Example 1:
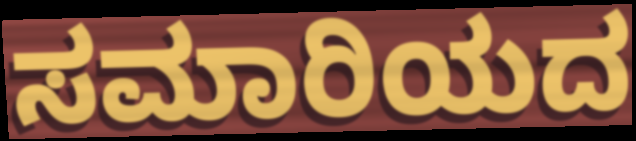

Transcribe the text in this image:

ಸಮಾರಿಯದ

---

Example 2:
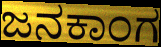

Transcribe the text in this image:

ಜನಕಾಂಗ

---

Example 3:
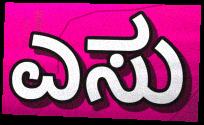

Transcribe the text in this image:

ಎಸು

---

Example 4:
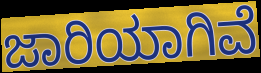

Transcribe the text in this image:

ಜಾರಿಯಾಗಿವೆ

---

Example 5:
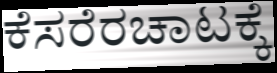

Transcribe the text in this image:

ಕೆಸರೆರಚಾಟಕ್ಕೆ